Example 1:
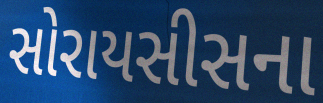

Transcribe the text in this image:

સોરાયસીસના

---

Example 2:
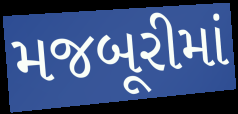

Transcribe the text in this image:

મજબૂરીમાં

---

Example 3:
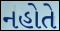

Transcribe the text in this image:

નહોતે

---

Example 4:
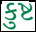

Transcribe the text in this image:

કુષ્ટ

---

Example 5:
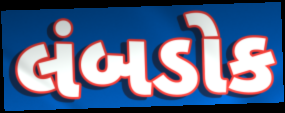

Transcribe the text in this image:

લંબડોક